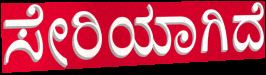
ಸೇರಿಯಾಗಿದೆ